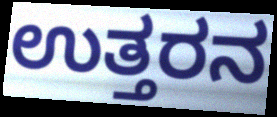
ಉತ್ತರನ